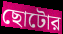
ছোটোর